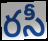
రసీ